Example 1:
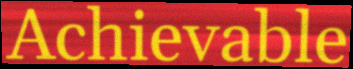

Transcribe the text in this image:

Achievable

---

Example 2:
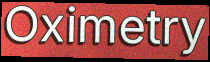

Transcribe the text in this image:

Oximetry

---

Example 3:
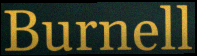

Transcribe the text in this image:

Burnell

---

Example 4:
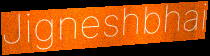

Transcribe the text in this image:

Jigneshbhai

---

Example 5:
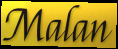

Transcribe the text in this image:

Malan